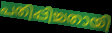
പതിപ്പിച്ചതായി